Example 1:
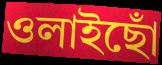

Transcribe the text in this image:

ওলাইছোঁ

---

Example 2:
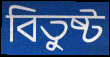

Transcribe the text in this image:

বিতুষ্ট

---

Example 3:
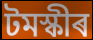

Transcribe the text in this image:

টমস্কীৰ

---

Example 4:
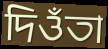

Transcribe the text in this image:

দিওঁতা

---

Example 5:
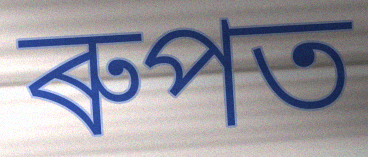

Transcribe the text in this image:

ৰুপত